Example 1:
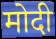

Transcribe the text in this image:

मोदी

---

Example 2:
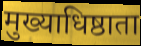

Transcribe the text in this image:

मुख्याधिष्ठाता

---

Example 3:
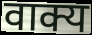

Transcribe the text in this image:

वाक्य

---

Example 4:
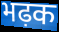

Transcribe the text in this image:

भढ़क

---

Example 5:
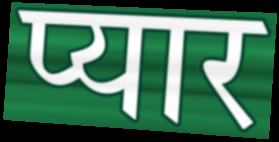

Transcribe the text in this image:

प्‍यार